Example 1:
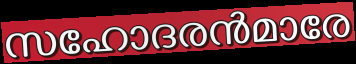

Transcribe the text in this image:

സഹോദരൻമാരേ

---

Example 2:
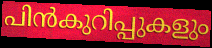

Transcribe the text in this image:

പിൻകുറിപ്പുകളും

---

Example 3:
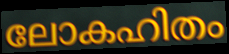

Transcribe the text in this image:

ലോകഹിതം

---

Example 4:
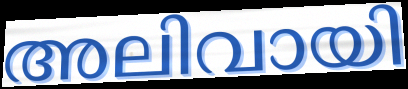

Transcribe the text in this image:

അലിവായി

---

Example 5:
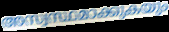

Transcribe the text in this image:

അസ്വസ്ഥമാക്കുകയും